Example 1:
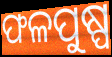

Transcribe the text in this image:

ଫଳପୁଷ୍ପ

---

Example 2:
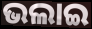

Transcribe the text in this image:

ଭଲାଇ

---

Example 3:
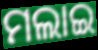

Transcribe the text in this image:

ମଲାଇ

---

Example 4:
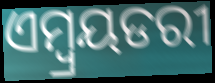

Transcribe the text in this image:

ଏମ୍ବ୍ରୟଡରୀ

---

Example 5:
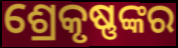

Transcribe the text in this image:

ଶ୍ରେକୃଷ୍ଣଙ୍କର